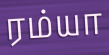
ரம்யா